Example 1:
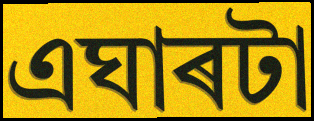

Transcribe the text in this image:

এঘাৰটা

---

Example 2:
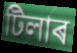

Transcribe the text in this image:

টিলাৰ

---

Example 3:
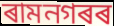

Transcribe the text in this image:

ৰামনগৰৰ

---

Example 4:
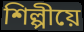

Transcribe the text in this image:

শিল্পীয়ে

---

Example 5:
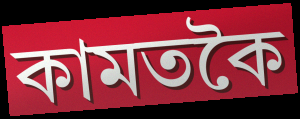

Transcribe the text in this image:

কামতকৈ